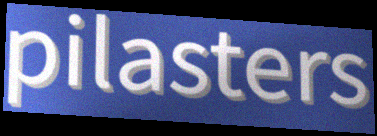
pilasters